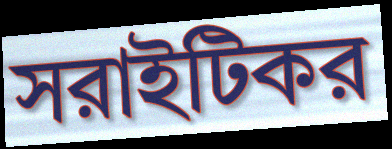
সরাইটিকর